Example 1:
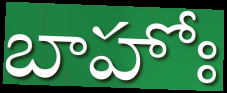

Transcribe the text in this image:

బాహోః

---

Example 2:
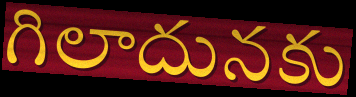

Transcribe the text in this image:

గిలాదునకు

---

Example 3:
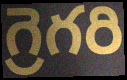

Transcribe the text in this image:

గ్రెగరి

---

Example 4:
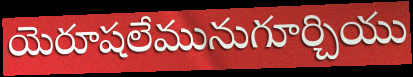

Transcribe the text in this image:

యెరూషలేమునుగూర్చియు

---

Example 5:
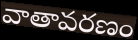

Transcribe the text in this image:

వాతావరణం